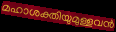
മഹാശക്തിയുമുള്ളവൻ